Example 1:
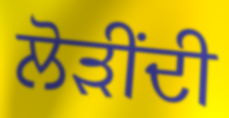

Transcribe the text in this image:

ਲੋੜੀਂਦੀ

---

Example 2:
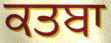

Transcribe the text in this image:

ਕਤਬਾ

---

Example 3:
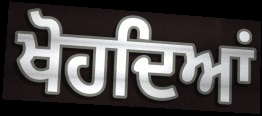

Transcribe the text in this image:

ਖੋਹਦਿਆਂ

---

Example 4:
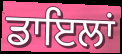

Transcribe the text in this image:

ਡਾਇਲਾਂ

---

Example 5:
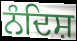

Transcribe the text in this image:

ਨੰਦਿਸ਼